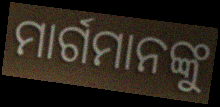
ମାର୍ଗମାନଙ୍କୁ